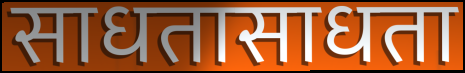
साधतासाधता